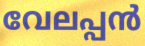
വേലപ്പൻ